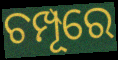
ଚମ୍ପୂରେ